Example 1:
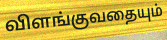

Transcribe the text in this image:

விளங்குவதையும்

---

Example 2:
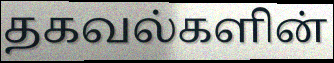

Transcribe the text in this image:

தகவல்களின்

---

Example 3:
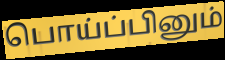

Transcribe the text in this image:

பொய்ப்பினும்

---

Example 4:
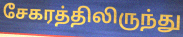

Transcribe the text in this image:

சேகரத்திலிருந்து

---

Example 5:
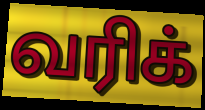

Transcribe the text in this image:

வரிக்